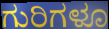
ಗುರಿಗಳೂ